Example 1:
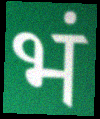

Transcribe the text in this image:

भं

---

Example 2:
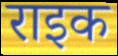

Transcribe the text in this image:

राइक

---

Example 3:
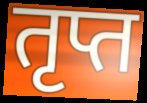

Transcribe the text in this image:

तृप्त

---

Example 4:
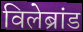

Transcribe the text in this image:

विलेब्रांड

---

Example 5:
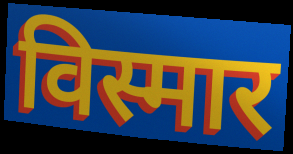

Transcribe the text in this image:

विस्मार